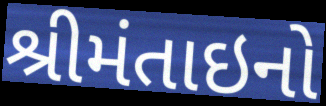
શ્રીમંતાઇનો